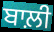
ਬਾਲ਼ੀ